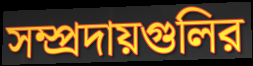
সম্প্রদায়গুলির